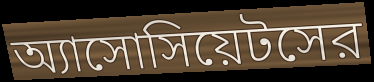
অ্যাসোসিয়েটসের